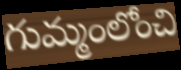
గుమ్మంలోంచి